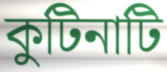
কুটিনাটি